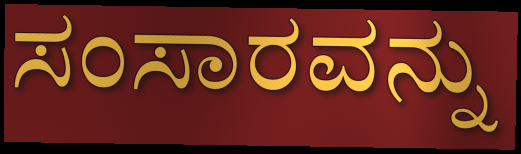
ಸಂಸಾರವನ್ನು